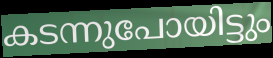
കടന്നുപോയിട്ടും